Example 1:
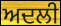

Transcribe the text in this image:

ਅਦਲੀ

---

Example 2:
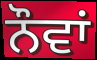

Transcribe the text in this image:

ਨੌਵਾਂ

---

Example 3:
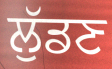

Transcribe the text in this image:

ਲੁੱਡਣ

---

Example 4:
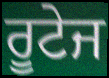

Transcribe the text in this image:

ਰੂਟੇਜ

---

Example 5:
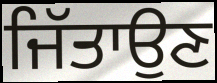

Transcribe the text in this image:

ਜਿੱਤਾਉਣ